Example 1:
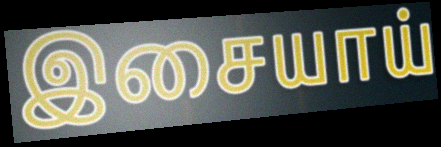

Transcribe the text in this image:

இசையாய்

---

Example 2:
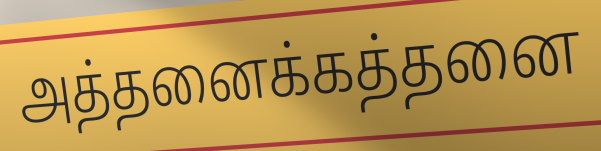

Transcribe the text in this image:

அத்தனைக்கத்தனை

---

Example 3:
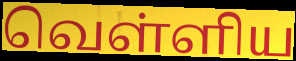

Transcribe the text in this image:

வெள்ளிய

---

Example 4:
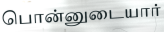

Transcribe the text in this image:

பொன்னுடையார்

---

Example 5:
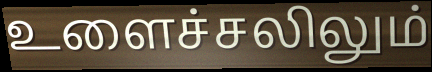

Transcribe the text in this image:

உளைச்சலிலும்